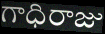
గాధిరాజు